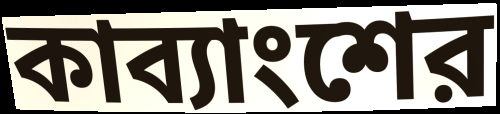
কাব্যাংশের